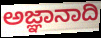
ಅಜ್ಞಾನಾದಿ